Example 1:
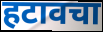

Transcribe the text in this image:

हटावचा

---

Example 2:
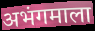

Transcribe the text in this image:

अभंगमाला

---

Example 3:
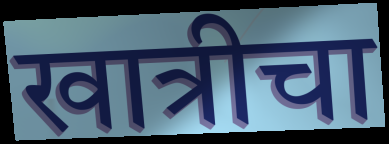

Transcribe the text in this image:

खात्रीचा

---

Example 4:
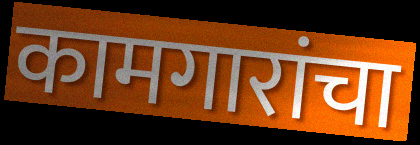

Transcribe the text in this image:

कामगारांचा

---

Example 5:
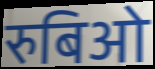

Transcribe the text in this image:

रुबिओ